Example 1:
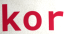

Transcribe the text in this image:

kor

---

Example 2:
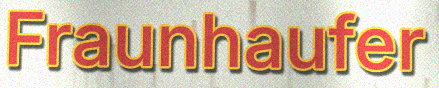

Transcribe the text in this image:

Fraunhaufer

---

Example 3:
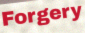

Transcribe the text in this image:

Forgery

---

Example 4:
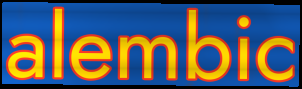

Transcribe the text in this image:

alembic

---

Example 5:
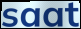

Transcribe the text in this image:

saat